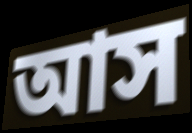
আস